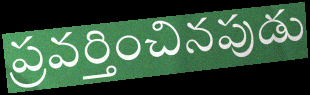
ప్రవర్తించినపుడు